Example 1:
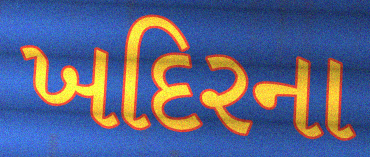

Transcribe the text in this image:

ખદિરના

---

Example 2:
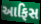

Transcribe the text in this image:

આફિસ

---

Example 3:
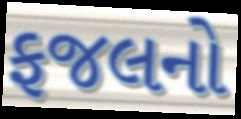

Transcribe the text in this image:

ફજલનો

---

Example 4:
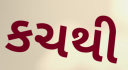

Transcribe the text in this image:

કચથી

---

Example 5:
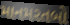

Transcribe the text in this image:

માનમરતબો